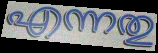
എന്നതു